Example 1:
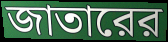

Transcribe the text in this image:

জাতারের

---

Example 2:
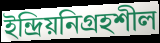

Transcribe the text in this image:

ইন্দ্রিয়নিগ্রহশীল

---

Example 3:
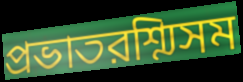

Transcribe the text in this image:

প্রভাতরশ্মিসম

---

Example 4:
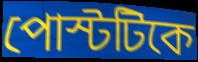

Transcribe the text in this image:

পোস্টটিকে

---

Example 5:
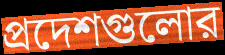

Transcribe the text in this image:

প্রদেশগুলোর